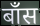
बाँस